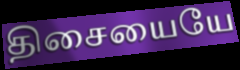
திசையையே